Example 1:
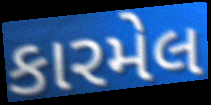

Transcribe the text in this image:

કારમેલ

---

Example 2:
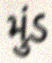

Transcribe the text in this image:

મુંડ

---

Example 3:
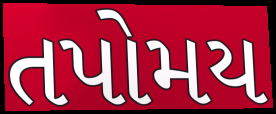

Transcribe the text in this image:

તપોમય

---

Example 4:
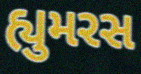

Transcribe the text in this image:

હ્યુમરસ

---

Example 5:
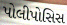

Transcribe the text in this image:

પોલીપોસિસ